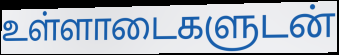
உள்ளாடைகளுடன்